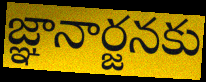
జ్ఞానార్జనకు